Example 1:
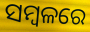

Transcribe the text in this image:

ସମ୍ବଳରେ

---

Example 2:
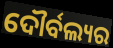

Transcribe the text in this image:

ଦୌର୍ବଲ୍ୟର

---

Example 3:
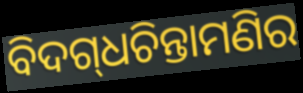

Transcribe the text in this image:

ବିଦଗ୍‌ଧଚିନ୍ତାମଣିର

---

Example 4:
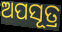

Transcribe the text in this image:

ଅପସୂତ୍ର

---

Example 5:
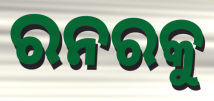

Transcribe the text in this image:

ରନରକୁ